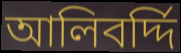
আলিবর্দ্দি